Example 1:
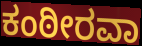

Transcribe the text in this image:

ಕಂಠೀರವಾ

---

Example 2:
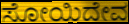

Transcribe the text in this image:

ಸೋಯಿದೇವ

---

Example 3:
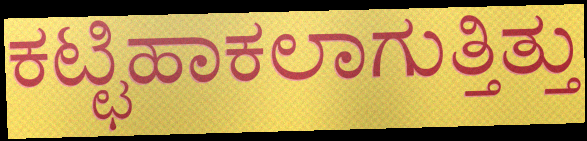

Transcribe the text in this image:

ಕಟ್ಟಿಹಾಕಲಾಗುತ್ತಿತ್ತು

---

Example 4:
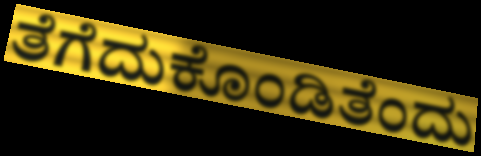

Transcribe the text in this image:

ತೆಗೆದುಕೊಂಡಿತೆಂದು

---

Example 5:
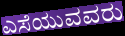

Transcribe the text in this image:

ಎಸೆಯುವವರು